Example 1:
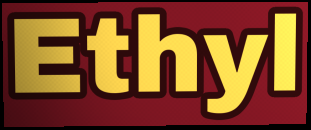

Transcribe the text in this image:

Ethyl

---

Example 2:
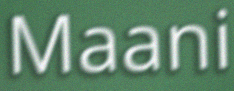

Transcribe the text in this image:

Maani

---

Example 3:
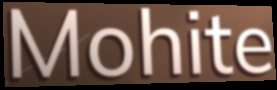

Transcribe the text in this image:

Mohite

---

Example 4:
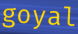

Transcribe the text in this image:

goyal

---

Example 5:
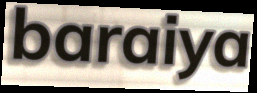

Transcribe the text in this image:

baraiya